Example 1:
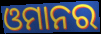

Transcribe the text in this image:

ଓମାନର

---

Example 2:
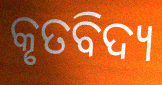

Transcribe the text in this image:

କୃତବିଦ୍ଯ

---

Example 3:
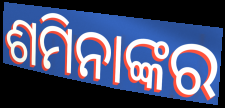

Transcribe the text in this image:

ଶମିନାଙ୍କର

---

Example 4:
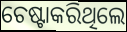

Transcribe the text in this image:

ଚେଷ୍ଟାକରିଥିଲେ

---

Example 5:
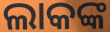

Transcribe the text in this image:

ଲାକଙ୍କ